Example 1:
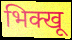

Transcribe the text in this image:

भिक्खू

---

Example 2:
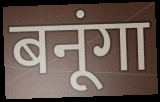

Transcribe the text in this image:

बनूंगा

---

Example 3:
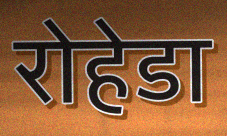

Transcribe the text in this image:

रोहेडा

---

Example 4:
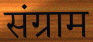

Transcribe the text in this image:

संग्राम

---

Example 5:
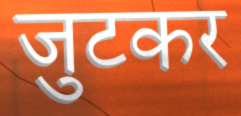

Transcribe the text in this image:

जुटकर